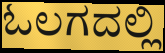
ಓಲಗದಲ್ಲಿ